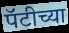
पॅटीच्या